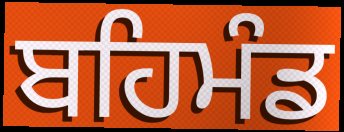
ਬਹਿਮੰਡ